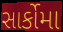
સાર્કોમા